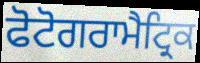
ਫੋਟੋਗਰਾਮੈਟ੍ਰਿਕ